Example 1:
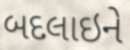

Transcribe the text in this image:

બદલાઇને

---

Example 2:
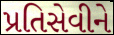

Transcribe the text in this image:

પ્રતિસેવીને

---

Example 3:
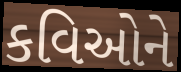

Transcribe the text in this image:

કવિઓને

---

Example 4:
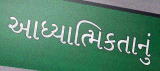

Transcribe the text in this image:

આધ્યાત્મિકતાનું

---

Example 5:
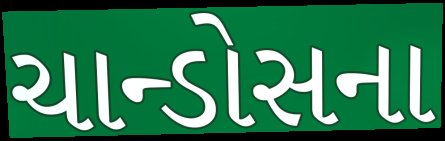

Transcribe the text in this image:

ચાન્ડોસના